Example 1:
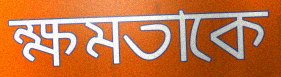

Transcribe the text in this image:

ক্ষমতাকে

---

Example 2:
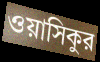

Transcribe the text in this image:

ওয়াসিকুর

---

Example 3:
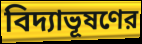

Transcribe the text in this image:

বিদ্যাভূষণের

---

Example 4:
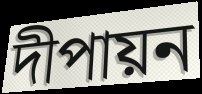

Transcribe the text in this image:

দীপায়ন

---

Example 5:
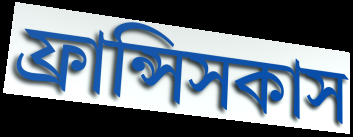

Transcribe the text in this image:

ফ্রান্সিসকাস